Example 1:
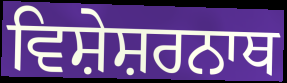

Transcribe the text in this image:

ਵਿਸ਼ੇਸ਼ਰਨਾਥ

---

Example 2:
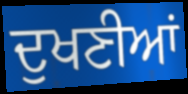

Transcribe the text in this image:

ਦੁਖਣੀਆਂ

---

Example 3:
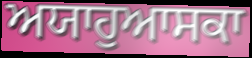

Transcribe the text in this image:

ਅਯਾਹੁਆਸਕਾ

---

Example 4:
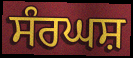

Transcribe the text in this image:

ਸੰਰਘਸ਼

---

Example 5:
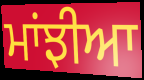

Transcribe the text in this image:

ਮਾਂਝੀਆ